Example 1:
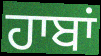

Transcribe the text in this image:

ਹਾਬਾਂ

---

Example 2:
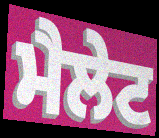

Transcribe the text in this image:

ਮੈਲੇਟ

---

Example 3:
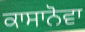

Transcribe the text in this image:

ਕਾਸਾਨੋਵਾ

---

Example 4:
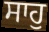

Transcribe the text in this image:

ਸਾਹੁ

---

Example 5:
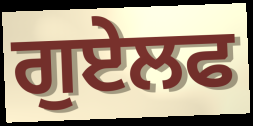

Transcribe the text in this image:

ਗੁਏਲਫ